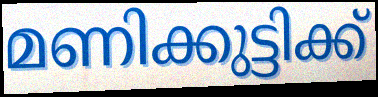
മണിക്കുട്ടിക്ക്